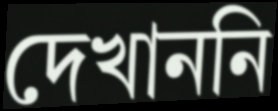
দেখাননি